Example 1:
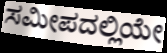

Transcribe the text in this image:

ಸಮೀಪದಲ್ಲಿಯೇ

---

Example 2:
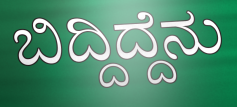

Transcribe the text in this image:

ಬಿದ್ದಿದ್ದೆನು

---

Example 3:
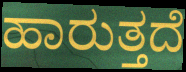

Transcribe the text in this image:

ಹಾರುತ್ತದೆ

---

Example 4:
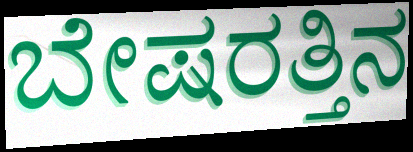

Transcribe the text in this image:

ಬೇಷರತ್ತಿನ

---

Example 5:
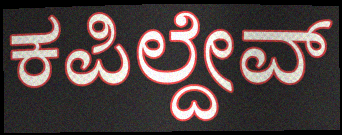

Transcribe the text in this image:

ಕಪಿಲ್ದೇವ್